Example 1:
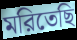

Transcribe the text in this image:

মরিতেছি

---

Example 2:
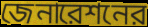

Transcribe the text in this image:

জেনারেশনের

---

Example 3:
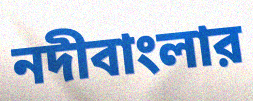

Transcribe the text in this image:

নদীবাংলার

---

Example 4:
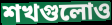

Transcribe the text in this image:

শখগুলোও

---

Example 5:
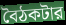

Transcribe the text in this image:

বৈঠকটার